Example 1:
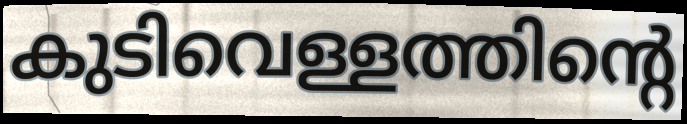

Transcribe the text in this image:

കുടിവെള്ളത്തിന്റെ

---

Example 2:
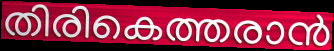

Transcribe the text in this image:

തിരികെത്തരാൻ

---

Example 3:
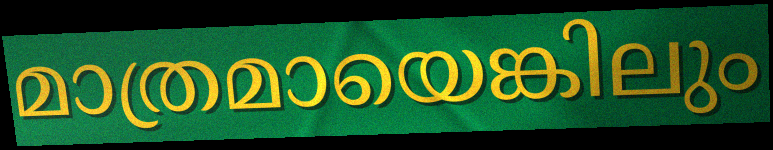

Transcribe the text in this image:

മാത്രമായെങ്കിലും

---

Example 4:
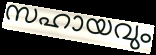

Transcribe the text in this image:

സഹായവും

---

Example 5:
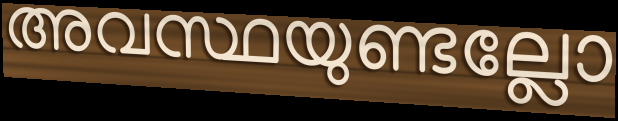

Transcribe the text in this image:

അവസ്ഥയുണ്ടല്ലോ